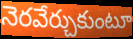
నెరవేర్చుకుంటూ